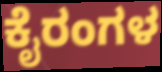
ಕೈರಂಗಳ